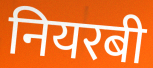
नियरबी